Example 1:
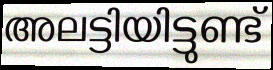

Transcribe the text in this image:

അലട്ടിയിട്ടുണ്ട്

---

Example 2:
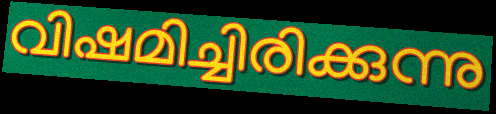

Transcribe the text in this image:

വിഷമിച്ചിരിക്കുന്നു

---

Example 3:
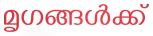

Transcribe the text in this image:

മൃഗങ്ങൾക്ക്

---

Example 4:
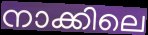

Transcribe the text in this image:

നാക്കിലെ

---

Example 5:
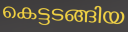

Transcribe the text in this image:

കെട്ടടങ്ങിയ